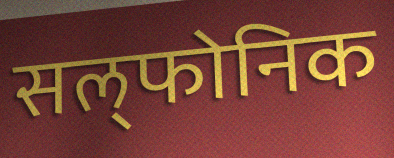
सल्फोनिक